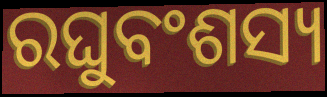
ରଘୁବଂଶସ୍ୟ